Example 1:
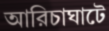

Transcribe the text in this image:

আরিচাঘাটে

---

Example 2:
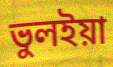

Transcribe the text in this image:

ভুলইয়া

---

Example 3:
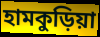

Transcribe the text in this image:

হামকুড়িয়া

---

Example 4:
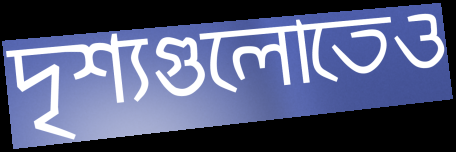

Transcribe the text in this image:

দৃশ্যগুলোতেও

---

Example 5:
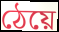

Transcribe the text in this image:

ঠেয়ে